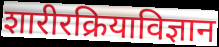
शारीरक्रियाविज्ञान